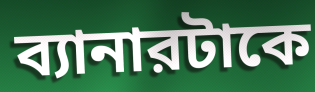
ব্যানারটাকে